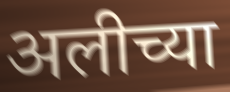
अलीच्या